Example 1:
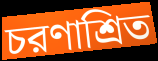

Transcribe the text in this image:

চরণাশ্রিত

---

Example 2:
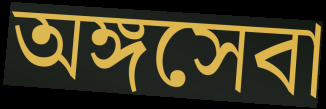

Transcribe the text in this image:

অঙ্গসেবা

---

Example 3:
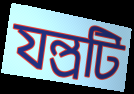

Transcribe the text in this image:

যন্ত্রটি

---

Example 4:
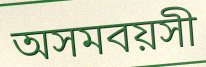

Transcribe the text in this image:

অসমবয়সী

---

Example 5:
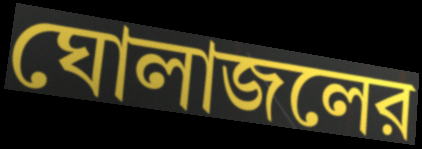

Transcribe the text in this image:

ঘোলাজলের